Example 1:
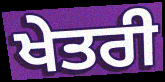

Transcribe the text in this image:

ਖੇਤਰੀ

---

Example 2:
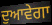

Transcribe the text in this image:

ਦੁਆਵੇਗਾ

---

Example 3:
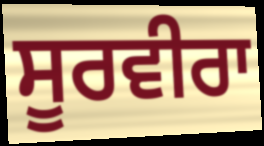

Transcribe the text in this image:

ਸੂਰਵੀਰਾ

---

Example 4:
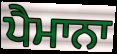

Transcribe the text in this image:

ਪੈਮਾਨਾ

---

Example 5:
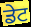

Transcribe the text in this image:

ਡੇਟ